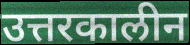
उत्तरकालीन